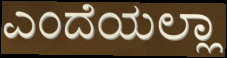
ಎಂದೆಯಲ್ಲಾ